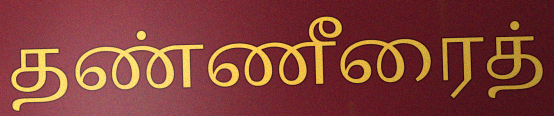
தண்ணீரைத்